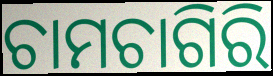
ଚାମଚାଗିରି